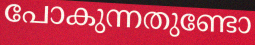
പോകുന്നതുണ്ടോ